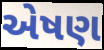
એષણ